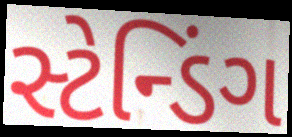
સ્ટેન્ડિંગ